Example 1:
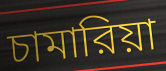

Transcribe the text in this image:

চামারিয়া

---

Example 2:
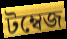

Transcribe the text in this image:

টম্বেজ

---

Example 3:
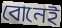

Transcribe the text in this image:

বোনেই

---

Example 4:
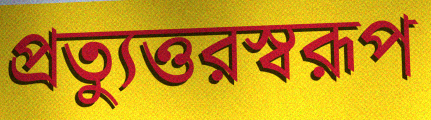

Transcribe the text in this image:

প্রত্যুত্তরস্বরূপ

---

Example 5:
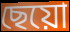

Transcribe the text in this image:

ছেয়ো